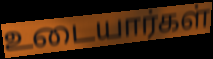
உடையார்கள்